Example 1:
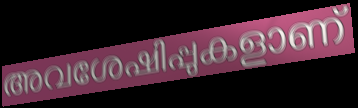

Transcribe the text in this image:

അവശേഷിപ്പുകളാണ്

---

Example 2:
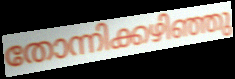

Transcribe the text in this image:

തോന്നിക്കഴിഞ്ഞു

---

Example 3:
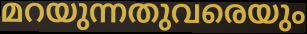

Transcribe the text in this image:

മറയുന്നതുവരെയും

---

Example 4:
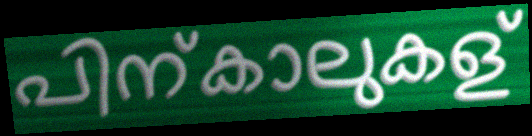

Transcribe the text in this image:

പിന്കാലുകള്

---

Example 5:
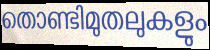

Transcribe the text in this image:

തൊണ്ടിമുതലുകളും